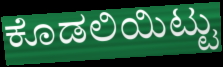
ಕೊಡಲಿಯಿಟ್ಟು